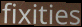
fixities